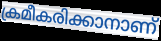
ക്രമീകരിക്കാനാണ്